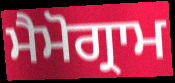
ਮੈਮੋਗ੍ਰਾਮ